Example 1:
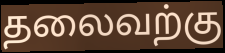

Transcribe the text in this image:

தலைவற்கு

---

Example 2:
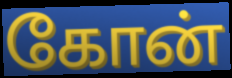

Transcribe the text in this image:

கோன்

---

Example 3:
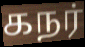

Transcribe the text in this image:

கநர்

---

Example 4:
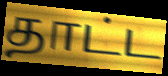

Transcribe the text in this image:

தாட்ட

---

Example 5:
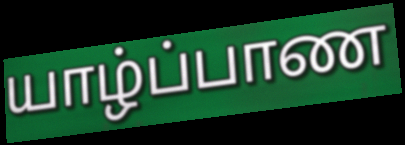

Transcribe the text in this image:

யாழ்ப்பாண